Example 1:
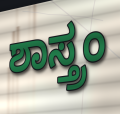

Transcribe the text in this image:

ಶಾಸ್ತ್ರಂ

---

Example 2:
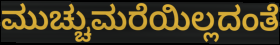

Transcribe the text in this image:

ಮುಚ್ಚುಮರೆಯಿಲ್ಲದಂತೆ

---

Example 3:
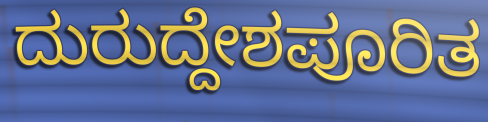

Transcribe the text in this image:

ದುರುದ್ದೇಶಪೂರಿತ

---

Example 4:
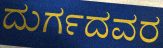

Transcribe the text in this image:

ದುರ್ಗದವರ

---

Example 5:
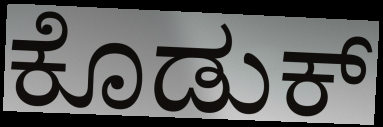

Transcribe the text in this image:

ಕೊಡುಕ್